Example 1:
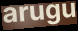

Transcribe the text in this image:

arugu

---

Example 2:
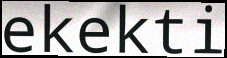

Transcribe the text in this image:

ekekti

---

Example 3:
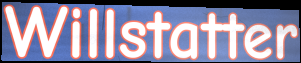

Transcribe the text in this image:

Willstatter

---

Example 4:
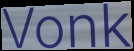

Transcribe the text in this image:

Vonk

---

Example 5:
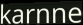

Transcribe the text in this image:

karnne